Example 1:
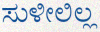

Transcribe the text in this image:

ಸುಳೀಲಿಲ್ಲ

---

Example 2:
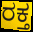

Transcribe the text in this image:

ರಕ್ತ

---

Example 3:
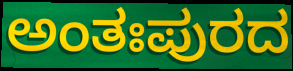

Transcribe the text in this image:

ಅಂತಃಪುರದ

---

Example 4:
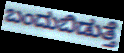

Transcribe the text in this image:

ಬಂದುಬಿಡುತ್ತೆ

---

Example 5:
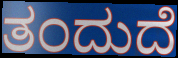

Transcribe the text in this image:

ತಂದುದೆ